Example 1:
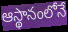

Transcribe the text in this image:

ఆస్థానంలోనే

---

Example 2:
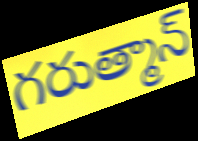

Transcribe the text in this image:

గరుత్మాన్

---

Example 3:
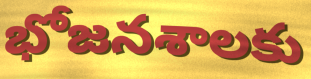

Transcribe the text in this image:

భోజనశాలకు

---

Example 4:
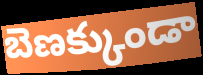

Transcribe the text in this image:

బెణక్కుండా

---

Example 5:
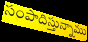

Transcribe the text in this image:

సంపాదిస్తున్నాము